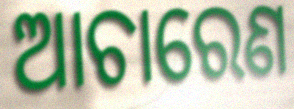
ଆଚାରେଣ